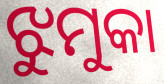
ଝୁମୁକା